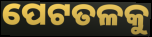
ପେଟତଳକୁ